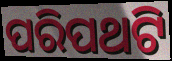
ପରିପଥଟି